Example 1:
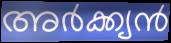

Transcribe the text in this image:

അർക്ക്യൻ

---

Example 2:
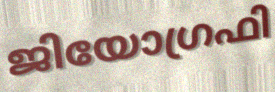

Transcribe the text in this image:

ജിയോഗ്രഫി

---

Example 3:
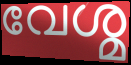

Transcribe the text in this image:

വേശ്മ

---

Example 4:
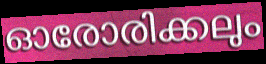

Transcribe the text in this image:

ഓരോരിക്കലും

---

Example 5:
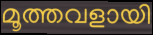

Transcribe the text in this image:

മൂത്തവളായി